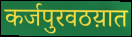
कर्जपुरवठय़ात